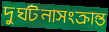
দুর্ঘটনাসংক্রান্ত